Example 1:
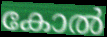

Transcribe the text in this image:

കോൽ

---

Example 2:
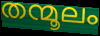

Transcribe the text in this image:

തന്മൂലം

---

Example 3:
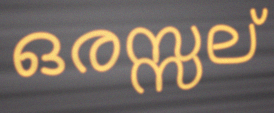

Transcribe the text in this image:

ഒരസ്സല്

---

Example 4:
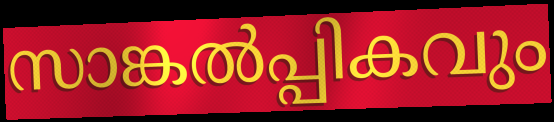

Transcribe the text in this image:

സാങ്കൽപ്പികവും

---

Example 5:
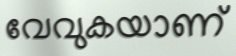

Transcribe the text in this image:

വേവുകയാണ്